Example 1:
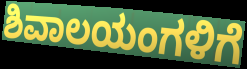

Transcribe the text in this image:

ಶಿವಾಲಯಂಗಳಿಗೆ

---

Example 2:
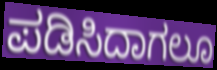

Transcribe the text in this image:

ಪಡಿಸಿದಾಗಲೂ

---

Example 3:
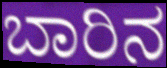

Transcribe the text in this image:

ಬಾರಿನ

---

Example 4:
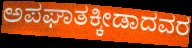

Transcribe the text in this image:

ಅಪಘಾತಕ್ಕೀಡಾದವರ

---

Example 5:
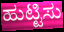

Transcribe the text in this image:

ಹುಟ್ಟಿಸು